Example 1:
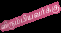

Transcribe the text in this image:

விரும்பியவர்க்கு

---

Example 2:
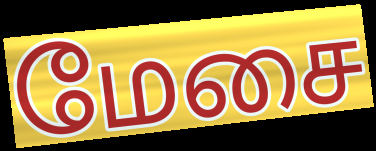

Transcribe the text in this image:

மேசை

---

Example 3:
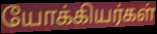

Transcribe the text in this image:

யோக்கியர்கள்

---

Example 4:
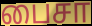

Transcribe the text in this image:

பைசா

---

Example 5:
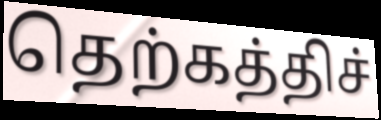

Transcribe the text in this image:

தெற்கத்திச்